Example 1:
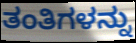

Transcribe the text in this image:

ತಂತಿಗಳನ್ನು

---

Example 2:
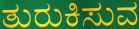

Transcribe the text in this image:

ತುರುಕಿಸುವ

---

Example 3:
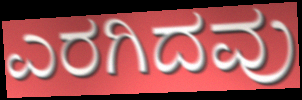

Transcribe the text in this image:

ಎರಗಿದವು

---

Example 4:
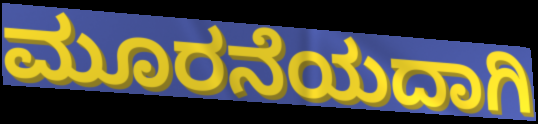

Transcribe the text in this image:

ಮೂರನೆಯದಾಗಿ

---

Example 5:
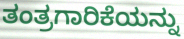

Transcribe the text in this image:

ತಂತ್ರಗಾರಿಕೆಯನ್ನು